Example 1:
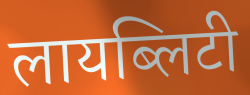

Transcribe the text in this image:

लायब्लिटी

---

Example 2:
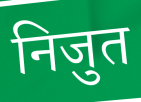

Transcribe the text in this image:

निजुत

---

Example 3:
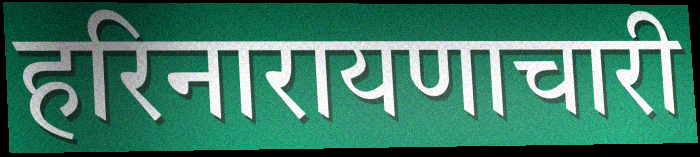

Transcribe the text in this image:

हरिनारायणाचारी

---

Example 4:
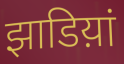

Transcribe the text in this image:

झाडिय़ां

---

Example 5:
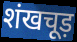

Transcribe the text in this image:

शंखचूड़